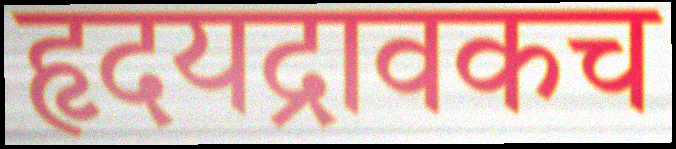
हृदयद्रावकच